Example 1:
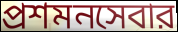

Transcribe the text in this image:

প্রশমনসেবার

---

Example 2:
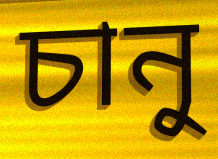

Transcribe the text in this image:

চানু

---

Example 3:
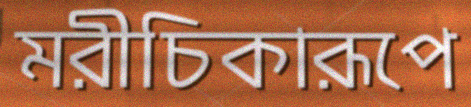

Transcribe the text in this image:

মরীচিকারূপে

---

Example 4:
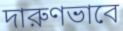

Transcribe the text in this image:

দারুণভাবে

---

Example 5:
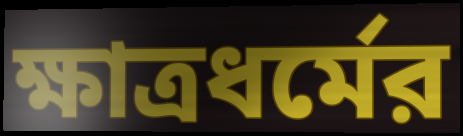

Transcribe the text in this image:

ক্ষাত্রধর্মের